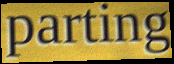
parting